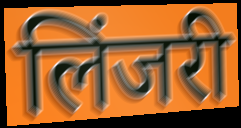
लिंजरी